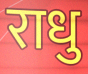
राधु